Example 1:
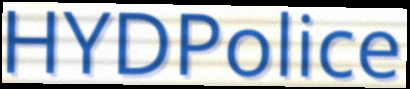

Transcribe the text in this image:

HYDPolice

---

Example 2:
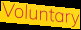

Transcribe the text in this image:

Voluntary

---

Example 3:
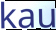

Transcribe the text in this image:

kau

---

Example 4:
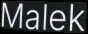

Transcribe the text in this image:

Malek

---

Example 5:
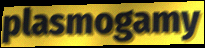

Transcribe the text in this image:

plasmogamy